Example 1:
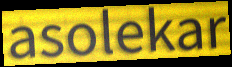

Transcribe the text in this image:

asolekar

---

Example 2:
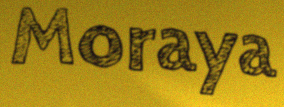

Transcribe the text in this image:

Moraya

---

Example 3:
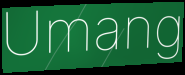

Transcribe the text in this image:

Umang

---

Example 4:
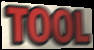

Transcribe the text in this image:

TOOL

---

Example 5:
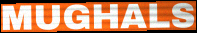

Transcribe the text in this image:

MUGHALS